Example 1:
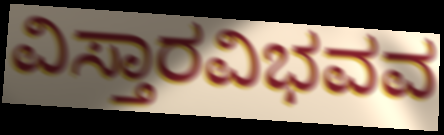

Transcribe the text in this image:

ವಿಸ್ತಾರವಿಭವವ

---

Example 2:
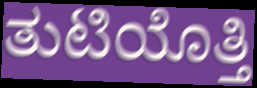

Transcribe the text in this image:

ತುಟಿಯೊತ್ತಿ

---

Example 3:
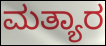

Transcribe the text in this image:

ಮತ್ಯಾರ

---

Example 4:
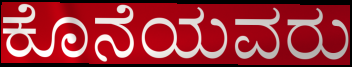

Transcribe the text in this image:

ಕೊನೆಯವರು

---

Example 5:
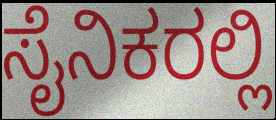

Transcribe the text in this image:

ಸೈನಿಕರಲ್ಲಿ